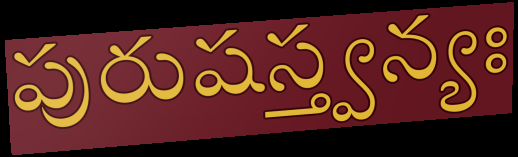
పురుషస్త్వన్యః